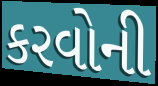
કરવોની